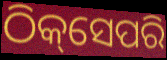
ଠିକ୍‌ସେପରି